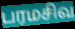
பரமசிவ